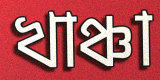
খাঞ্চা